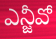
ఎన్జీవో